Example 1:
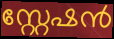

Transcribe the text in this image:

സ്റ്റേഷൻ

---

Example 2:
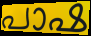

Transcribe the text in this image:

പാഷ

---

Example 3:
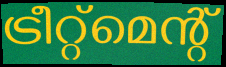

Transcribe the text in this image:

ട്രീറ്റ്മെന്റ്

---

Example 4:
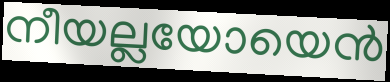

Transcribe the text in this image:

നീയല്ലയോയെൻ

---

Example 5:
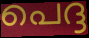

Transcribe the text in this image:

പെദ്ദ